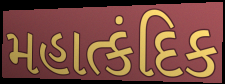
મહાત્કંદિક